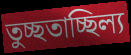
তুচ্ছতাচ্ছিল্য